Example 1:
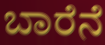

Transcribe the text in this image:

ಬಾರೆನೆ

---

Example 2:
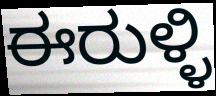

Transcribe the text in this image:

ಈರುಳ್ಳಿ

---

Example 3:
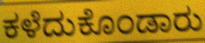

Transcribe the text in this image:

ಕಳೆದುಕೊಂಡಾರು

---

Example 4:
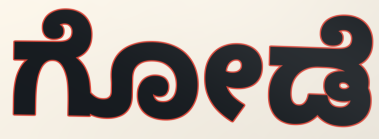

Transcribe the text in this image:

ಗೋಡೆ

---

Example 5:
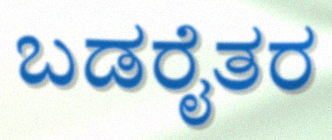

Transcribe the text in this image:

ಬಡರೈತರ